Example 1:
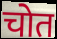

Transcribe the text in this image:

चोत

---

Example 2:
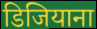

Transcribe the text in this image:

डिजियाना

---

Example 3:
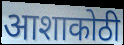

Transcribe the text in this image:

आशाकोठी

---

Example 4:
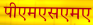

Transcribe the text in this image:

पीएमएसएमए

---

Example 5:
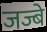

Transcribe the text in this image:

जज्बे